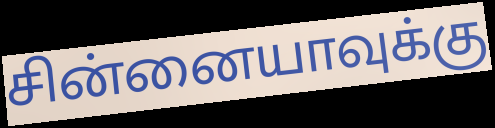
சின்னையாவுக்கு